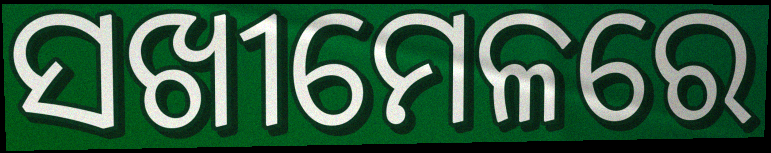
ସଖୀମେଳରେ